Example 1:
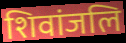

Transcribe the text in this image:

शिवांजलि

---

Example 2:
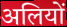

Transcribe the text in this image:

अलियों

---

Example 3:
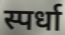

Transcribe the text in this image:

स्पर्धा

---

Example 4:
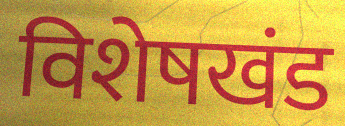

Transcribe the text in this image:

विशेषखंड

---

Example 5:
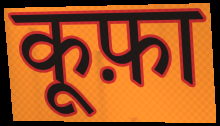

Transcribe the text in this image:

कूफ़ा